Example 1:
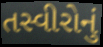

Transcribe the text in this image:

તસ્વીરોનું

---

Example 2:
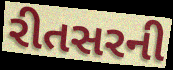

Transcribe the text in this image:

રીતસરની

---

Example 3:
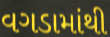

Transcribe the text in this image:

વગડામાંથી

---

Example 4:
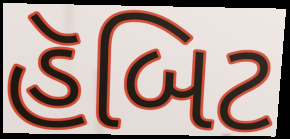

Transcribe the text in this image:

હૅબિટ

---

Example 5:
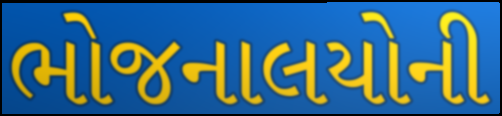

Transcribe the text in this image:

ભોજનાલયોની